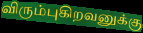
விரும்புகிறவனுக்கு